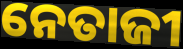
ନେତାଜୀ